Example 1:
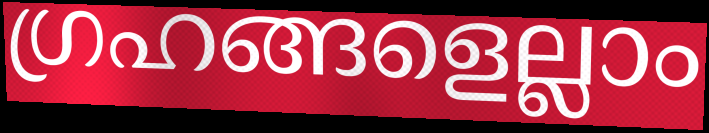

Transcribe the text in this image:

ഗ്രഹങ്ങളെല്ലാം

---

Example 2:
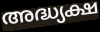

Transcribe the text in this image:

അദ്ധ്യക്ഷ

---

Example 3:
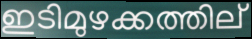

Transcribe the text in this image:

ഇടിമുഴക്കത്തില്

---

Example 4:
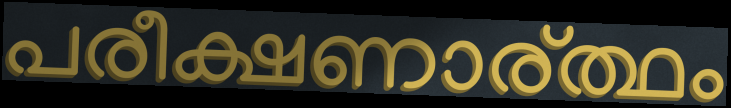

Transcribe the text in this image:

പരീക്ഷണാര്ത്ഥം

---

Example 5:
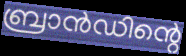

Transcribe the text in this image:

ബ്രാൻഡിന്റെ